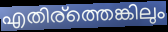
എതിര്ത്തെങ്കിലും